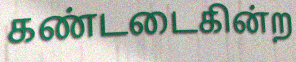
கண்டடைகின்ற